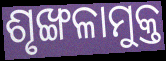
ଶୃଙ୍ଖଳାମୁକ୍ତ